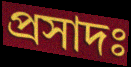
প্রসাদঃ